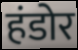
हंडोर